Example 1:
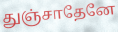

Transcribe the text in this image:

துஞ்சாதேனே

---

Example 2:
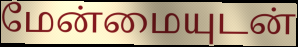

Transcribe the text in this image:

மேன்மையுடன்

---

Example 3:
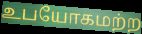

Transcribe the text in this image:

உபயோகமற்ற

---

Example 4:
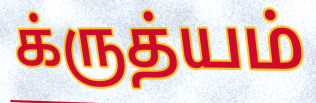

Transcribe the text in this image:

க்ருத்யம்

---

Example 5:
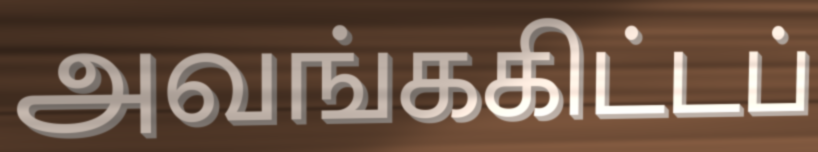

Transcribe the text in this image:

அவங்ககிட்டப்